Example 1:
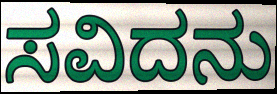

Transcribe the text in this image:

ಸವಿದನು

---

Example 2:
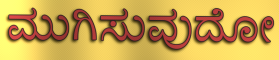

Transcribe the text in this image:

ಮುಗಿಸುವುದೋ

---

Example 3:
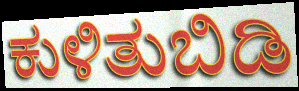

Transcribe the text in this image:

ಕುಳಿತುಬಿಡಿ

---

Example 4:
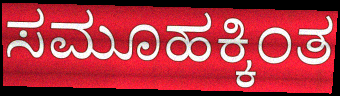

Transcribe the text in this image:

ಸಮೂಹಕ್ಕಿಂತ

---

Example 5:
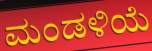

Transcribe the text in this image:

ಮಂಡಳಿಯೆ